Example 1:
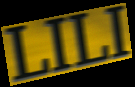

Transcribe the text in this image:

LILI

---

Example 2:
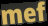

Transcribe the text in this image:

mef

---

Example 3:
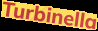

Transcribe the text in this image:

Turbinella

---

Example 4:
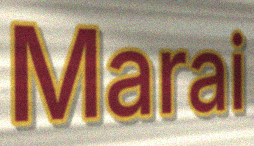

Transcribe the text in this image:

Marai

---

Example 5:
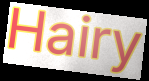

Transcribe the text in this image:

Hairy